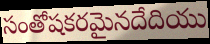
సంతోషకరమైనదేదియు